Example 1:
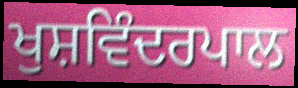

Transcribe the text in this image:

ਖੁਸ਼ਵਿੰਦਰਪਾਲ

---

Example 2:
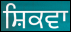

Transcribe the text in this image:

ਸ਼ਿਕਵਾ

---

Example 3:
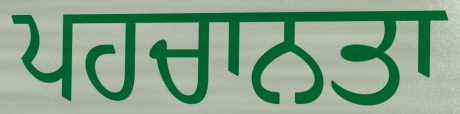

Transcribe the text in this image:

ਪਹਚਾਨਤਾ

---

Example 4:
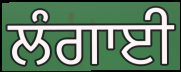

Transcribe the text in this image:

ਲੰਗਾਈ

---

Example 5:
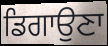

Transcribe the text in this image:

ਡਿਗਾਉਣਾ